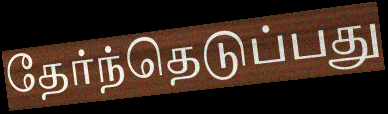
தேர்ந்தெடுப்பது